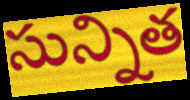
సున్నిత